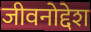
जीवनोद्देश